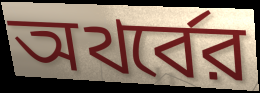
অথর্বের